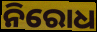
ନିରୋଧ